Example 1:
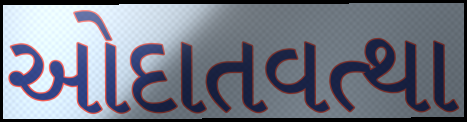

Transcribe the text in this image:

ઓદાતવત્થા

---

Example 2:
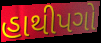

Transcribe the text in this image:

હાથીપગો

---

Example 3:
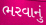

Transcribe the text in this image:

ભરવાનું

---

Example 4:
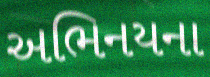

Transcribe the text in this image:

અભિનયના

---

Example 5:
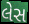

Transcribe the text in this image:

લેસ